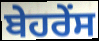
ਬੇਹਰੇਂਸ